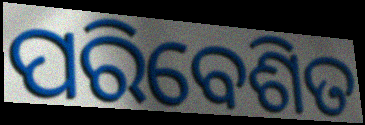
ପରିବେଶିତ